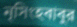
নৃসিংহবাবুর